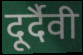
दूर्दैवी